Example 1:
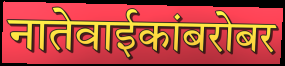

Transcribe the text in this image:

नातेवाईकांबरोबर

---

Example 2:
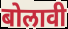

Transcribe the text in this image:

बोलावी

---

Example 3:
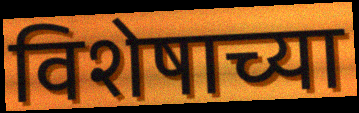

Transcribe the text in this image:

विशेषाच्या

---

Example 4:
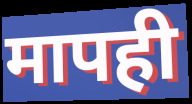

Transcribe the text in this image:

मापही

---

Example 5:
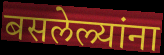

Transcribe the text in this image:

बसलेल्यांना